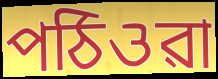
পঠিওৱা